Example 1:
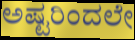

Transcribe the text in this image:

ಅಷ್ಟರಿಂದಲೇ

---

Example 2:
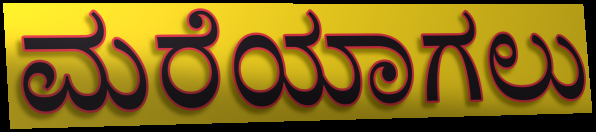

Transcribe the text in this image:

ಮರೆಯಾಗಲು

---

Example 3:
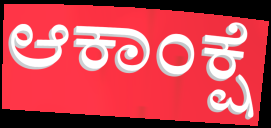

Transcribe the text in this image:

ಆಕಾಂಕ್ಷೆ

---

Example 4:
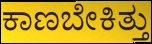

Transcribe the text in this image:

ಕಾಣಬೇಕಿತ್ತು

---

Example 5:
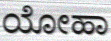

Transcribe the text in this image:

ಯೋಹಾ